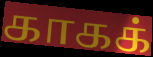
காகக்